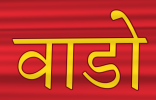
वाडो